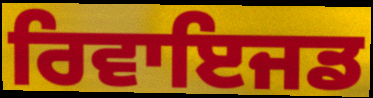
ਰਿਵਾਇਜਡ